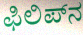
ಫಿಲಿಪ್‌ನ